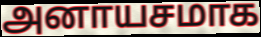
அனாயசமாக